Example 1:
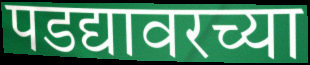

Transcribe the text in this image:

पडद्यावरच्या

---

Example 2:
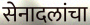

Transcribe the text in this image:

सेनादलांचा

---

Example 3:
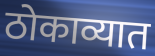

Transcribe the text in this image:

ठोकाव्यात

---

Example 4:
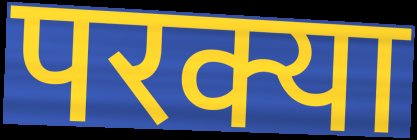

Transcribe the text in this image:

परक्या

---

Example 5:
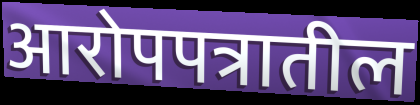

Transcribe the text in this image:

आरोपपत्रातील